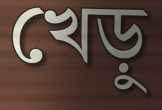
খেড়ু